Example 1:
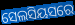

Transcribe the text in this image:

ସେଲସିୟସରେ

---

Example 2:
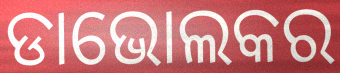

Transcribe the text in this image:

ଡାଭୋଲକର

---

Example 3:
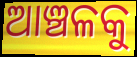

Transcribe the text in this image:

ଆଞ୍ଚଳକୁ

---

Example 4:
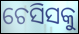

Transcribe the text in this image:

ଚେସିସକୁ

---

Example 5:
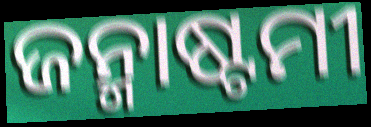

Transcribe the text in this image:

ଜନ୍ମାଷ୍ଟମୀ